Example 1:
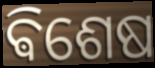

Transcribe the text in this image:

ଵିଶେଷ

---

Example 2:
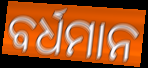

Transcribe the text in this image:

ବର୍ଧମାନ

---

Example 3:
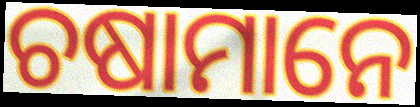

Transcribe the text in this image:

ଚଷାମାନେ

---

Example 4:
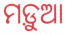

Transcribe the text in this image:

ମଡ଼ୁଆ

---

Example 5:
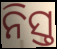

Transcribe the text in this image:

ନିସ୍ତ